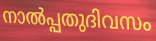
നാൽപ്പതുദിവസം